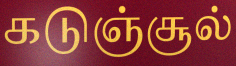
கடுஞ்சூல்